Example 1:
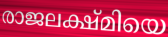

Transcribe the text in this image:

രാജലക്ഷ്മിയെ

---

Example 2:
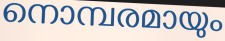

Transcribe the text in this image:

നൊമ്പരമായും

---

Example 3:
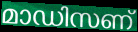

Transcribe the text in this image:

മാഡിസണ്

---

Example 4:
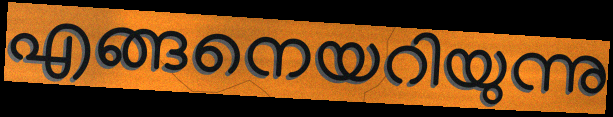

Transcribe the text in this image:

എങ്ങനെയറിയുന്നു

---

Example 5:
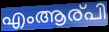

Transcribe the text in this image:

എംആര്പി